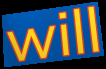
will